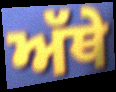
ਅੱਥੇ